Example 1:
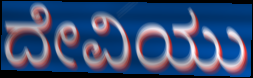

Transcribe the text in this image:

ದೇವಿಯು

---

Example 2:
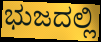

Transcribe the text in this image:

ಭುಜದಲ್ಲಿ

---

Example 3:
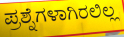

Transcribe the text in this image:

ಪ್ರಶ್ನೆಗಳಾಗಿರಲಿಲ್ಲ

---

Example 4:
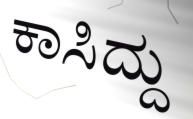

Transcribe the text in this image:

ಕಾಸಿದ್ದು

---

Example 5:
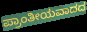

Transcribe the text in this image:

ಪ್ರಾಂತೀಯವಾದದ